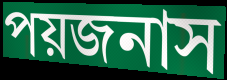
পয়জনাস